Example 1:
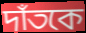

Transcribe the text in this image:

দাঁতকে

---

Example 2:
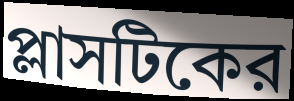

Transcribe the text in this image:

প্লাসটিকের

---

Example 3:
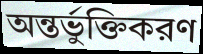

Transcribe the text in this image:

অন্তর্ভুক্তিকরণ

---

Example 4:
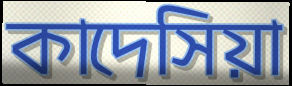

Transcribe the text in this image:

কাদেসিয়া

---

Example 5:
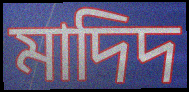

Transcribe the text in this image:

মাদিদ